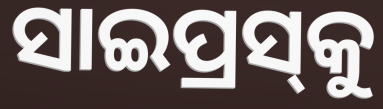
ସାଇପ୍ରସ୍‌କୁ